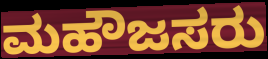
ಮಹೌಜಸರು